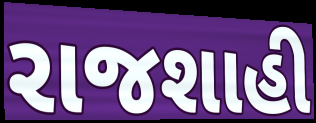
રાજશાહી